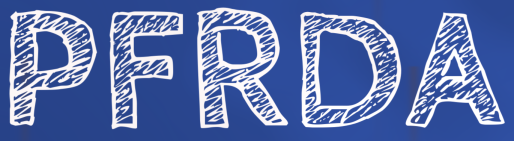
PFRDA